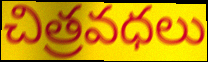
చిత్రవధలు